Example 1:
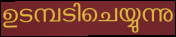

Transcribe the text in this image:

ഉടമ്പടിചെയ്യുന്നു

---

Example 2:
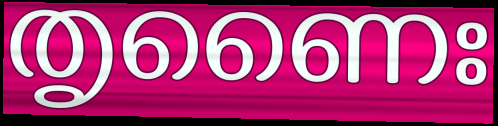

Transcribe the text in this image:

തൃണൈഃ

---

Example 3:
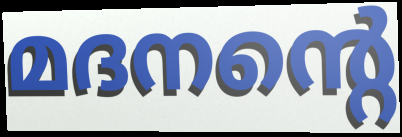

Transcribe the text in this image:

മദനന്റെ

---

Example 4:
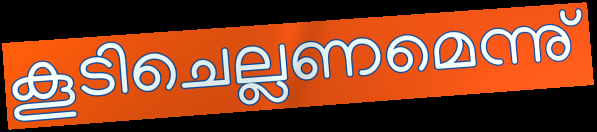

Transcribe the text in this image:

കൂടിചെല്ലണമെന്നു്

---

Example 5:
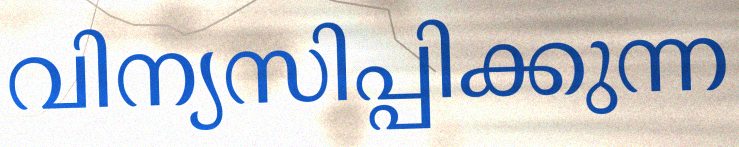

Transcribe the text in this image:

വിന്യസിപ്പിക്കുന്ന